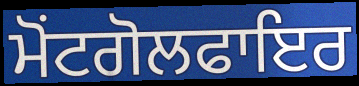
ਮੋਂਟਗੋਲਫਾਇਰ